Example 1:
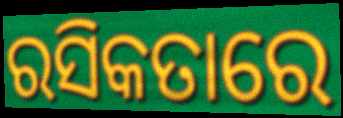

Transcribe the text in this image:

ରସିକତାରେ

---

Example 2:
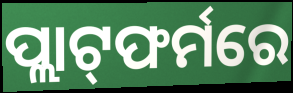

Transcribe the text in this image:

ପ୍ଲାଟ୍‌ଫର୍ମରେ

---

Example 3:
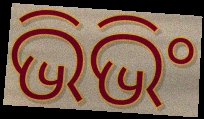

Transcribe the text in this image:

ଭିଭିଂ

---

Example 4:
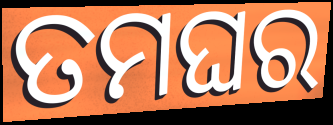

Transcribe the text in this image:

ତମଘର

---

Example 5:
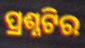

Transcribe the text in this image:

ପ୍ରଶ୍ନଟିର